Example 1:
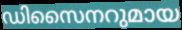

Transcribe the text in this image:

ഡിസൈനറുമായ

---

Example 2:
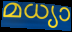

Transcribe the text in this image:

മധ്യാ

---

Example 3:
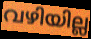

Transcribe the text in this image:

വഴിയില്ല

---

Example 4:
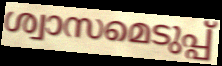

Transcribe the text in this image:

ശ്വാസമെടുപ്പ്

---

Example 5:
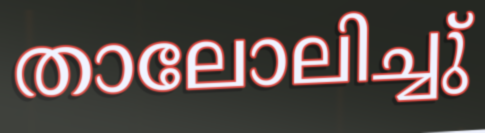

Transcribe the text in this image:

താലോലിച്ചു്